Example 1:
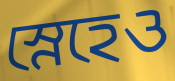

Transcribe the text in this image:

স্নেহেও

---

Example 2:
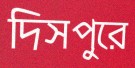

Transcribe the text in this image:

দিসপুরে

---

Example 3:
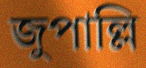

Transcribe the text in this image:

জুপাল্লি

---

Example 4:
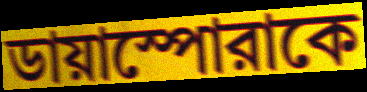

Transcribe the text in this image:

ডায়াস্পোরাকে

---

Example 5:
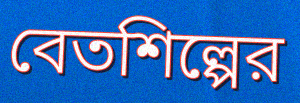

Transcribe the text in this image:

বেতশিল্পের